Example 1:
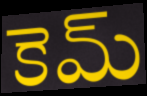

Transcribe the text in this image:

కెమ్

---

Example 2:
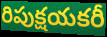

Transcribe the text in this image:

రిపుక్షయకరీ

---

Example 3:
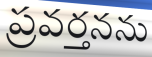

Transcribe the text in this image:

ప్రవర్తనను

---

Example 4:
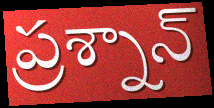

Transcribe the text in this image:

ప్రశ్నాన్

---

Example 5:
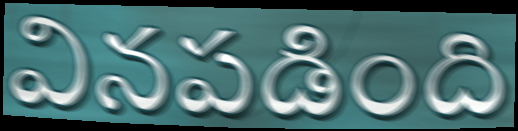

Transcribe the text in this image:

వినపడింది